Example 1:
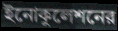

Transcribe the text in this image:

ইনোকুলেশনের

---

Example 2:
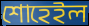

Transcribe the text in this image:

শোহেইল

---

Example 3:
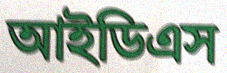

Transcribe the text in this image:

আইডিএস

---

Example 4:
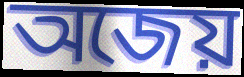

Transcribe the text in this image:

অজেয়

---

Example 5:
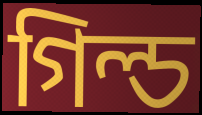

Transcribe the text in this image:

গিল্ড